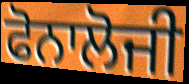
ਫੋਨਾਲੋਜੀ